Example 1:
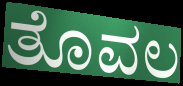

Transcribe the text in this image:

ತೊವಲ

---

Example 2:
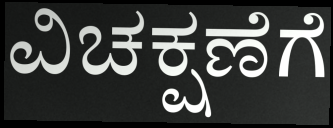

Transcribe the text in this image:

ವಿಚಕ್ಷಣೆಗೆ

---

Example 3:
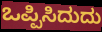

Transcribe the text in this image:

ಒಪ್ಪಿಸಿದುದು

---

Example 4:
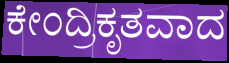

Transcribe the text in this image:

ಕೇಂದ್ರಿಕೃತವಾದ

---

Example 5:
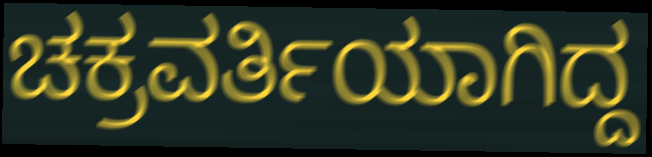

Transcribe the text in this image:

ಚಕ್ರವರ್ತಿಯಾಗಿದ್ದ